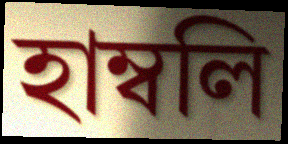
হাম্বলি